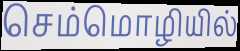
செம்மொழியில்